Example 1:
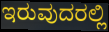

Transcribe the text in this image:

ಇರುವುದರಲ್ಲಿ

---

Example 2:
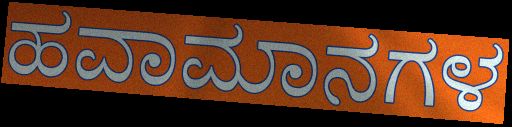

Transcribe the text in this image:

ಹವಾಮಾನಗಳ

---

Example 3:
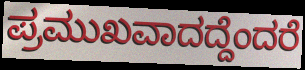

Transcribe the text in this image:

ಪ್ರಮುಖವಾದದ್ದೆಂದರೆ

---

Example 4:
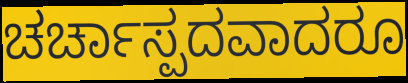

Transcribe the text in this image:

ಚರ್ಚಾಸ್ಪದವಾದರೂ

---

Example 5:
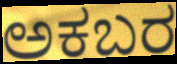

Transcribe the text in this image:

ಅಕಬರ